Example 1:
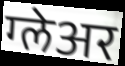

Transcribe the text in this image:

ग्लेअर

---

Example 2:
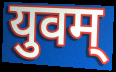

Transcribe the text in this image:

युवम्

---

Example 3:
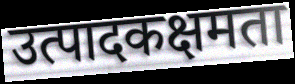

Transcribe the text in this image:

उत्पादकक्षमता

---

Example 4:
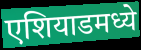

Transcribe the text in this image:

एशियाडमध्ये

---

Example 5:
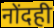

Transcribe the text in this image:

नोंदही